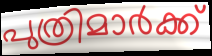
പുത്രിമാർക്ക്